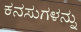
ಕನಸುಗಳನ್ನು